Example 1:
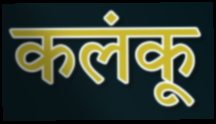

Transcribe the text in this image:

कलंकू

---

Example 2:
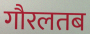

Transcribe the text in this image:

गौरलतब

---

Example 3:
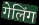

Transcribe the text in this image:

गेलिंग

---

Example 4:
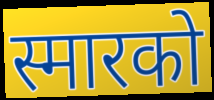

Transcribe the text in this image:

स्मारको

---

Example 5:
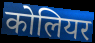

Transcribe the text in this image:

कोलियर